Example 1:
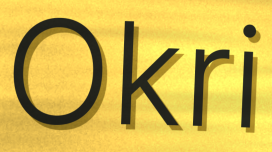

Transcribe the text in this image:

Okri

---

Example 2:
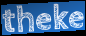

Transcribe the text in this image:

theke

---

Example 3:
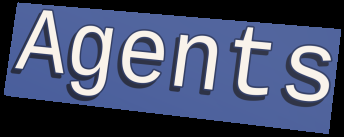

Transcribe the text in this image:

Agents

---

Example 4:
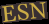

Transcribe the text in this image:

ESN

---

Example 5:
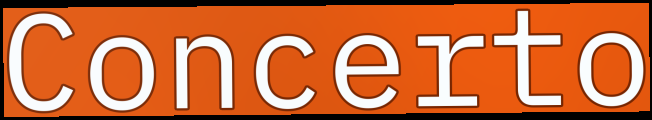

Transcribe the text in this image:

Concerto